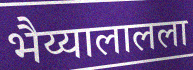
भैय्यालालला